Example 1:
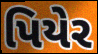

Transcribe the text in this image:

પિયેર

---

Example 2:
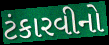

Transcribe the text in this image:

ટંકારવીનો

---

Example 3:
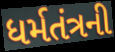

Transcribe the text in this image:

ધર્મતંત્રની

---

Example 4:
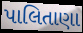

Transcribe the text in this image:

પાલિતાણા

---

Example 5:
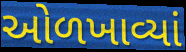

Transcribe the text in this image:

ઓળખાવ્યાં